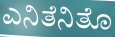
ಎನಿತೆನಿತೊ